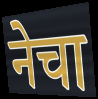
नेचा